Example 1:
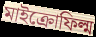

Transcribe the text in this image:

মাইক্রোফিল্ম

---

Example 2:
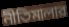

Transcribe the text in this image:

নীতিমালার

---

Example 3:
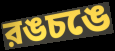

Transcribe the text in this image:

রঙচঙে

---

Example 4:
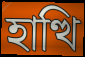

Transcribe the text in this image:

হাত্থি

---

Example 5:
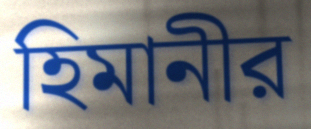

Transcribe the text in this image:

হিমানীর